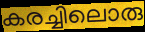
കരച്ചിലൊരു